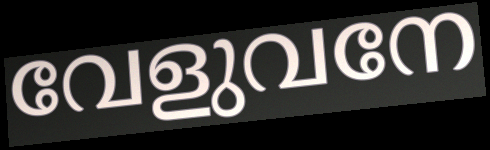
വേളുവനേ